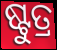
ଷ୍ଟୁତ୍ର